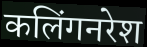
कलिंगनरेश